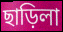
ছাড়িলা